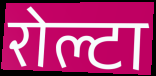
रोल्टा